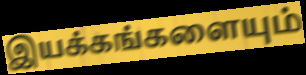
இயக்கங்களையும்